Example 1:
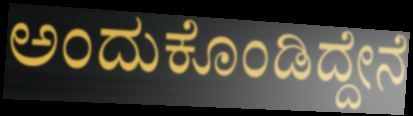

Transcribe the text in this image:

ಅಂದುಕೊಂಡಿದ್ದೇನೆ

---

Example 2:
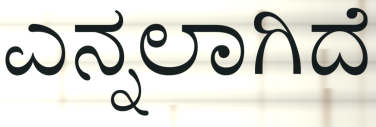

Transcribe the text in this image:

ಎನ್ನಲಾಗಿದೆ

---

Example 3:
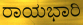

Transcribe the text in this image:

ರಾಯಭಾರಿ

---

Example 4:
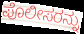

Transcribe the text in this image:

ಪೊಲೀಸರನ್ನು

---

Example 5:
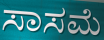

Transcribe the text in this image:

ಸಾಸಮೆ